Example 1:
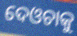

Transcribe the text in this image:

ଦେଓଚାକୁ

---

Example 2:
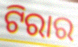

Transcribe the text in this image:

ଟିରାର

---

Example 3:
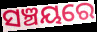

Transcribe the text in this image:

ସଞ୍ଚୟରେ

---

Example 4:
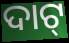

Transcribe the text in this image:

ଦାଟ୍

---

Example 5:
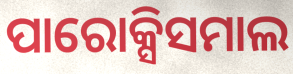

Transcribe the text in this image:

ପାରୋକ୍ସିସମାଲ